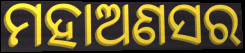
ମହାଅଣସର